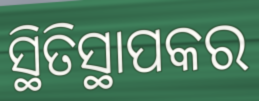
ସ୍ଥିତିସ୍ଥାପକର